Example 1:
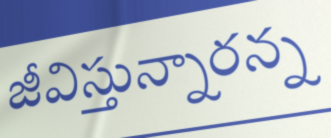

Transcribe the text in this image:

జీవిస్తున్నారన్న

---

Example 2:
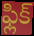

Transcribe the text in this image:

ఫ్లిక్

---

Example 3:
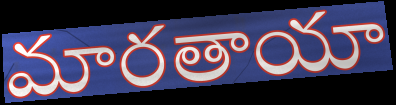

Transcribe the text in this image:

మారతాయా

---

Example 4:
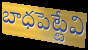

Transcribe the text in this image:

బాధపెట్టేవి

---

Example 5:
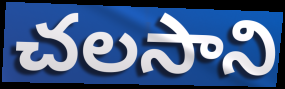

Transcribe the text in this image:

చలసాని